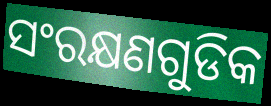
ସଂରକ୍ଷଣଗୁଡିକ